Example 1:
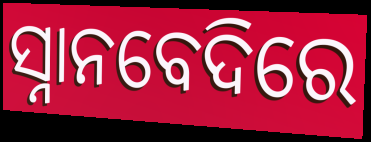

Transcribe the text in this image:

ସ୍ନାନବେଦିରେ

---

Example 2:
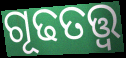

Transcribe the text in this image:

ଗୂଢତତ୍ତ୍ୱ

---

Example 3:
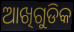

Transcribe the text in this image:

ଆଖିଗୁଡିକ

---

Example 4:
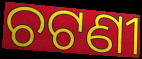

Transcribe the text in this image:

ଚଟଣୀ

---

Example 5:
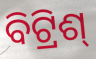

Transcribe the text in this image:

ବିଟ୍ରିଶ୍